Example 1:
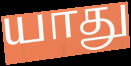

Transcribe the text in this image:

யாது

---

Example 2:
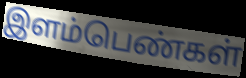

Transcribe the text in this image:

இளம்பெண்கள்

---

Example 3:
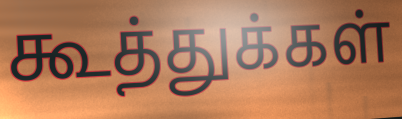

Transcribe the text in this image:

கூத்துக்கள்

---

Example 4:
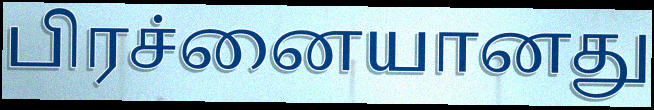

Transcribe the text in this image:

பிரச்னையானது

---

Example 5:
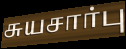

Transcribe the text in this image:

சுயசார்பு